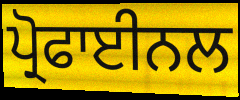
ਪ੍ਰੋਫਾਈਨਲ